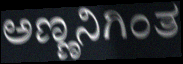
ಅಣ್ಣನಿಗಿಂತ